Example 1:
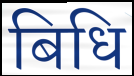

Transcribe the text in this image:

बिधि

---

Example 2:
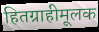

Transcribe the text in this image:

हितग्राहीमूलक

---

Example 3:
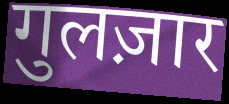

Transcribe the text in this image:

गुलज़ार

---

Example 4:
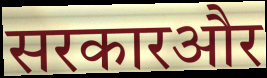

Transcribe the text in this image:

सरकारऔर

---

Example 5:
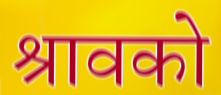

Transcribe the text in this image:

श्रावको